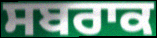
ਸਬਰਾਕ